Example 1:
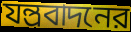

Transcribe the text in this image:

যন্ত্রবাদনের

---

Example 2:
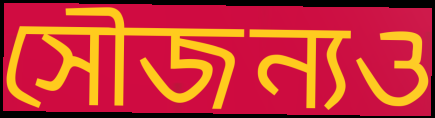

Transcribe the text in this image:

সৌজন্যও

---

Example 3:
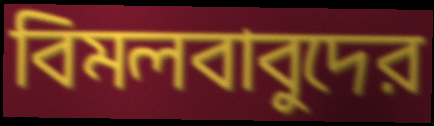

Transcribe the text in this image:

বিমলবাবুদের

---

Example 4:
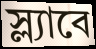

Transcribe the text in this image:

স্ল্যাবে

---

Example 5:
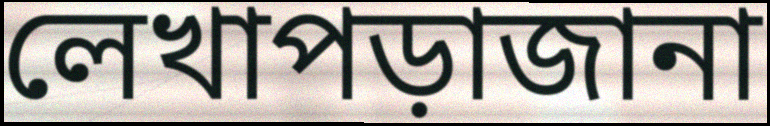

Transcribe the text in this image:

লেখাপড়াজানা